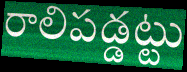
రాలిపడ్డట్టు